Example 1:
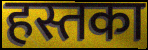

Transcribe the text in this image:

हस्तका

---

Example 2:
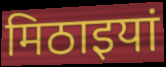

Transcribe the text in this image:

मिठाइयां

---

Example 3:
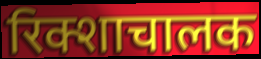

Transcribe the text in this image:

रिक्शाचालक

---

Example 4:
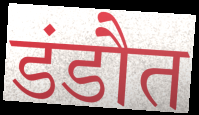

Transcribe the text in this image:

डंडौत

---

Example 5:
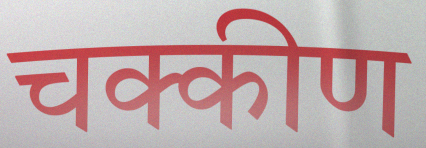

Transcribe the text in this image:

चक्कीण